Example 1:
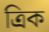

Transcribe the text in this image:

ত্রিক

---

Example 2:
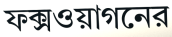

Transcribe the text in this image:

ফক্সওয়াগনের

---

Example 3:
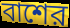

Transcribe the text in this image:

বাশের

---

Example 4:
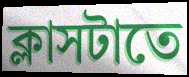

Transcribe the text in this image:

ক্লাসটাতে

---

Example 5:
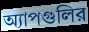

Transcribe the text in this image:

অ্যাপগুলির